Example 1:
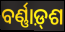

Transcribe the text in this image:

ବର୍ଣ୍ଣାଡ଼୍‌ଶ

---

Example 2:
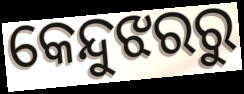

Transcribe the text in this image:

କେନ୍ଦୁଝରରୁ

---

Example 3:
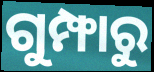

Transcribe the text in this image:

ଗୁମ୍ଫାରୁ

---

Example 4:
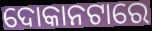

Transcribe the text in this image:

ଦୋକାନଟାରେ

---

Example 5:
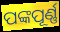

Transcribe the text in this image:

ପଙ୍କପୂର୍ଣ୍ଣ